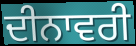
ਦੀਨਾਵਰੀ